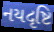
નયદૃષ્ટિ